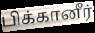
பிக்கானீர்